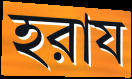
হরায